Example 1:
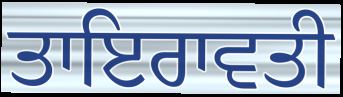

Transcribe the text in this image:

ਤਾਇਰਾਵਤੀ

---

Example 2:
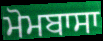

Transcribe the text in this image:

ਮੋਮਬਾਸਾ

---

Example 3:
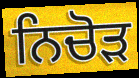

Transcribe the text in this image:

ਨਿਚੋਡ਼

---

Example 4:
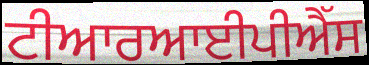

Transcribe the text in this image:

ਟੀਆਰਆਈਪੀਐੱਸ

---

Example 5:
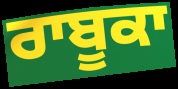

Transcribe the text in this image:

ਰਾਬੂਕਾ